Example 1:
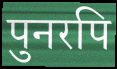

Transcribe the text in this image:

पुनरपि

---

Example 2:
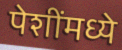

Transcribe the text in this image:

पेशींमध्ये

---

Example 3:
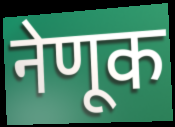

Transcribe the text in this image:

नेणूक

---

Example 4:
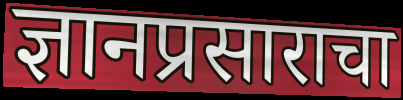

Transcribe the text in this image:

ज्ञानप्रसाराचा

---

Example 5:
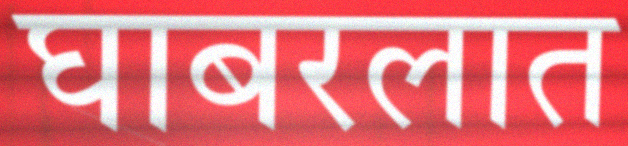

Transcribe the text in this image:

घाबरलात